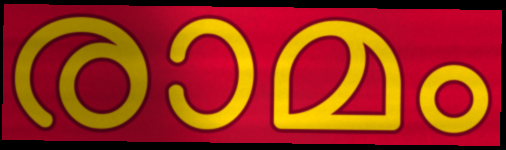
രാമം